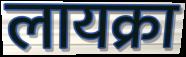
लायक्रा